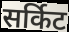
सर्किट